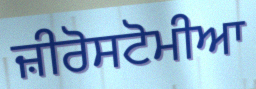
ਜ਼ੀਰੋਸਟੋਮੀਆ